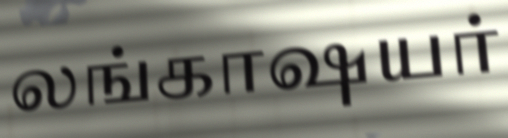
லங்காஷயர்